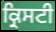
ਕ੍ਰਿਸਟੀ